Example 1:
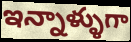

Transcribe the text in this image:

ఇన్నాళ్ళుగా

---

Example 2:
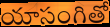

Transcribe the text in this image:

యాసంగితో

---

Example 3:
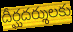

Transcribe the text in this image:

దీర్ఘదర్శులకు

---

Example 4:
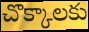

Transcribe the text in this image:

చొక్కాలకు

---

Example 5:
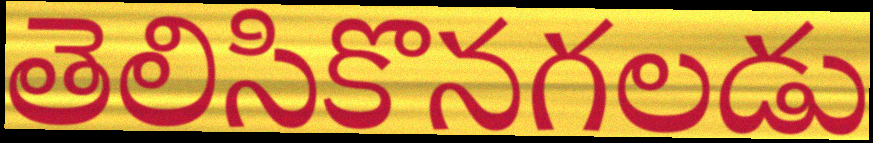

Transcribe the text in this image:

తెలిసికొనగలడు